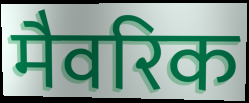
मैवरिक